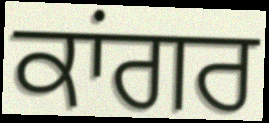
ਕਾਂਗਰ